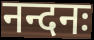
नन्दनः